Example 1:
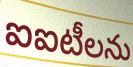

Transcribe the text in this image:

ఐఐటీలను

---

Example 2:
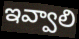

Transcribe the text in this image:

ఇవ్వాలి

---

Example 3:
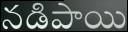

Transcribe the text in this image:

నడిపాయి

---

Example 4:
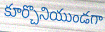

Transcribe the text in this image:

కూర్చొనియుండగా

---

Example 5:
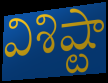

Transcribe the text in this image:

విశిష్టా